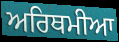
ਅਰਿਥਮੀਆ